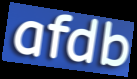
afdb